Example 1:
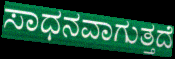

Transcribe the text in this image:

ಸಾಧನವಾಗುತ್ತದೆ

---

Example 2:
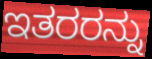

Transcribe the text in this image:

ಇತರರನ್ನು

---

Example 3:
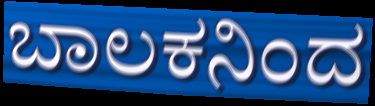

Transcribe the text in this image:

ಬಾಲಕನಿಂದ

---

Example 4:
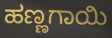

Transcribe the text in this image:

ಹಣ್ಣಗಾಯಿ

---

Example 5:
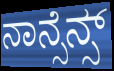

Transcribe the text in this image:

ನಾನ್ಸೆನ್ಸ್